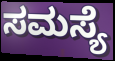
ಸಮಸ್ಯೆ